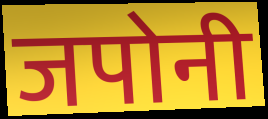
जपोनी